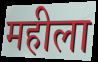
महीला